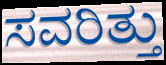
ಸವರಿತ್ತು